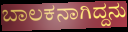
ಬಾಲಕನಾಗಿದ್ದನು